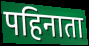
पहिनाता